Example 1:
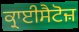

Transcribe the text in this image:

ਕ੍ਰਾਈਸੈਟੋਜ਼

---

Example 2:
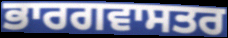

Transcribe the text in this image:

ਭਾਰਗਵਾਸਤਰ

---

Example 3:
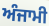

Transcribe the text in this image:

ਅੰਜਾਮੀ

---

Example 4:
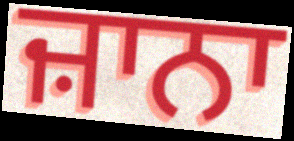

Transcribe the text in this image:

ਜ਼ਾਨਾ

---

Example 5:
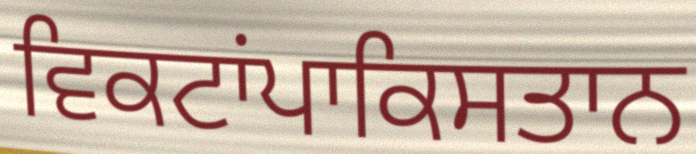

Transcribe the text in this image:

ਵਿਕਟਾਂਪਾਕਿਸਤਾਨ